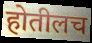
होतीलच